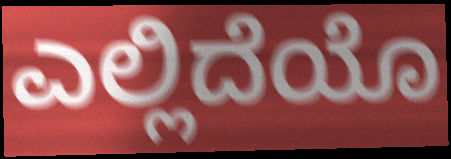
ಎಲ್ಲಿದೆಯೊ